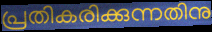
പ്രതികരിക്കുന്നതിനു